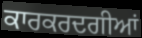
ਕਾਰਕਰਦਗੀਆਂ